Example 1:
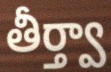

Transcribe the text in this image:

తీర్త్వా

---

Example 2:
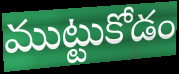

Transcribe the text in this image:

ముట్టుకోడం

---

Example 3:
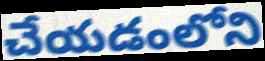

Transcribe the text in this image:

చేయడంలోని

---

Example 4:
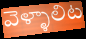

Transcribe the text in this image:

వెళ్ళాలిట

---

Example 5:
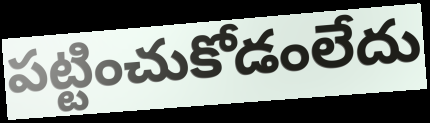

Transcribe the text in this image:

పట్టించుకోడంలేదు